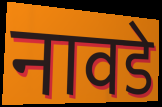
नावडे